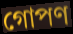
গোপণ